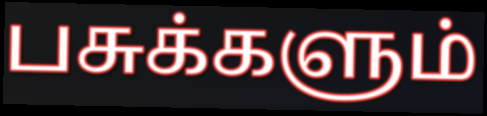
பசுக்களும்